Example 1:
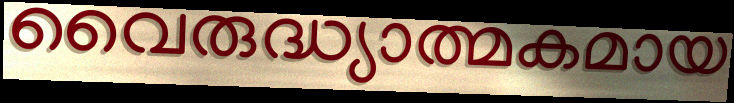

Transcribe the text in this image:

വൈരുദ്ധ്യാത്മകമായ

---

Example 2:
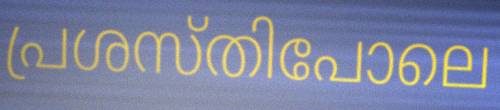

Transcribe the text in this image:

പ്രശസ്തിപോലെ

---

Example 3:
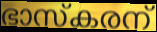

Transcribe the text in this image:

ഭാസ്‌കരന്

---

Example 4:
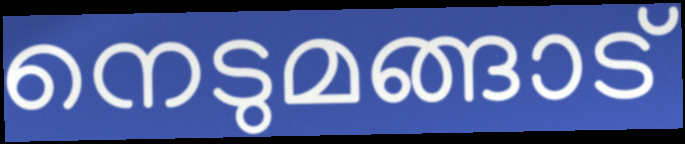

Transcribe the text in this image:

നെടുമങ്ങാട്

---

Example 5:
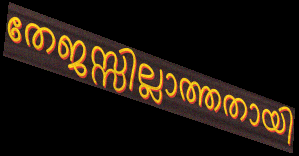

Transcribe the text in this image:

തേജസ്സില്ലാത്തതായി